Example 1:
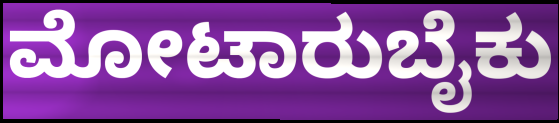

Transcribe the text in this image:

ಮೋಟಾರುಬೈಕು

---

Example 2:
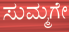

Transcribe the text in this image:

ಸುಮ್ಮಗೇ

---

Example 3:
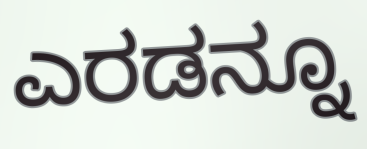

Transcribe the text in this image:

ಎರಡನ್ನೂ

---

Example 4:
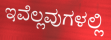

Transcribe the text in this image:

ಇವೆಲ್ಲವುಗಳಲ್ಲಿ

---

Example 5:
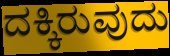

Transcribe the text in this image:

ದಕ್ಕಿರುವುದು